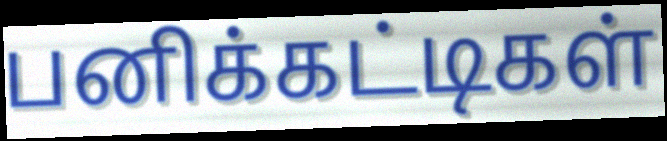
பனிக்கட்டிகள்